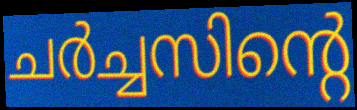
ചർച്ചസിന്റെ